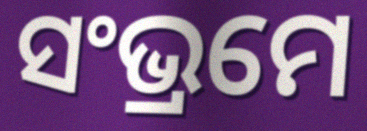
ସଂଭ୍ରମେ